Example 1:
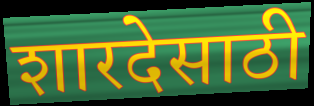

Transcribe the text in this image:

शारदेसाठी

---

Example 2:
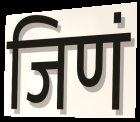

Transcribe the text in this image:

जिणं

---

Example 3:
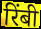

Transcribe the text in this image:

रिंबी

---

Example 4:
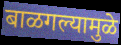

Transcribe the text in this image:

बाळगल्यामुळे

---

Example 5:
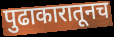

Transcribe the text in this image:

पुढाकारातूनच